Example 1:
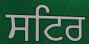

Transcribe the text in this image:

ਸਟਿਰ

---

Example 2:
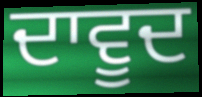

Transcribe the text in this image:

ਦਾਵੂਦ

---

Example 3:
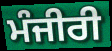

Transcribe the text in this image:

ਮੰਜੀਰੀ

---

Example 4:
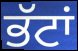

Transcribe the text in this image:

ਭੱਟਾਂ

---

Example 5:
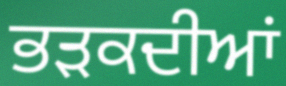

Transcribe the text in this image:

ਭੜਕਦੀਆਂ